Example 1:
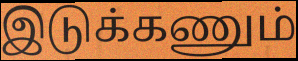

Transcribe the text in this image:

இடுக்கணும்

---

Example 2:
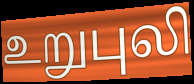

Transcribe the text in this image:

உறுபுலி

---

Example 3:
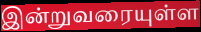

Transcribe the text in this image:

இன்றுவரையுள்ள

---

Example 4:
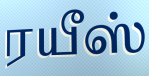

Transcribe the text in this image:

ரயீஸ்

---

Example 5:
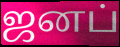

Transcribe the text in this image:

ஜனப்